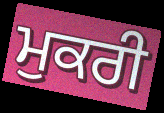
ਮੁਕਰੀ